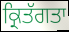
ਕ੍ਰਿਤੱਗਤਾ